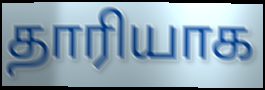
தாரியாக